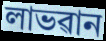
লাভৱান